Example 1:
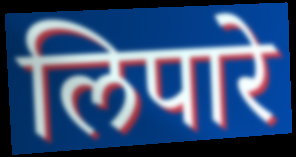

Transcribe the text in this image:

लिपारे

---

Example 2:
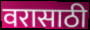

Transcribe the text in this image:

वरासाठी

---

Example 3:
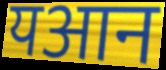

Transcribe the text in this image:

यआन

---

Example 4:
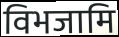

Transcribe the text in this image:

विभजामि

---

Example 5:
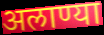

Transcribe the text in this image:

अलाण्या